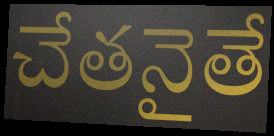
చేతనైతే